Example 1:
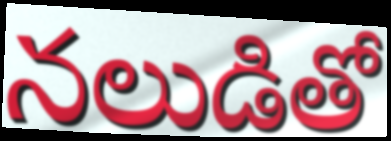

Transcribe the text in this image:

నలుడితో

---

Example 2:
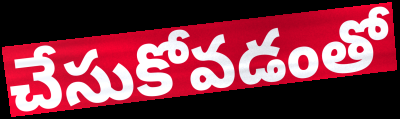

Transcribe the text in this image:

చేసుకోవడంతో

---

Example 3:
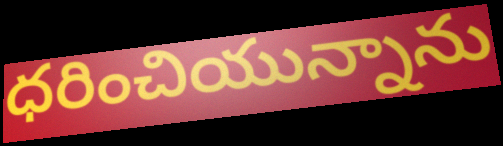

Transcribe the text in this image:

ధరించియున్నాను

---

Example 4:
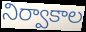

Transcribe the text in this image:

నిర్వాకాల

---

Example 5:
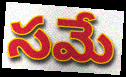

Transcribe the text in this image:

సమే